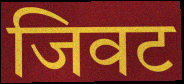
जिवट